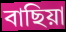
বাছিয়া